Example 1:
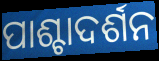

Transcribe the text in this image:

ପାଶ୍ଚାଦର୍ଶନ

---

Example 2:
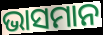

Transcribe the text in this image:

ଭାସମାନ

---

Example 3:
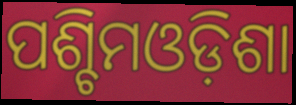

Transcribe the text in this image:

ପଶ୍ଚିମଓଡ଼ିଶା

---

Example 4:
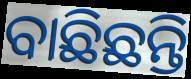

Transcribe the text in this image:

ବାଛିଛନ୍ତି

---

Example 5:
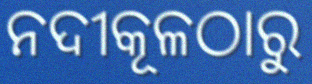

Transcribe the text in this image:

ନଦୀକୂଳଠାରୁ